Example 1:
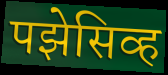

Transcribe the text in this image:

पझेसिव्ह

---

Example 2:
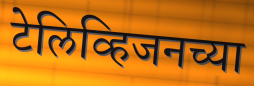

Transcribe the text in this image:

टेलिव्हिजनच्या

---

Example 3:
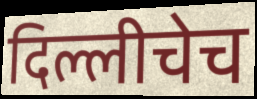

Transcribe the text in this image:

दिल्लीचेच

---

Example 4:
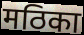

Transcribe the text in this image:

मठिका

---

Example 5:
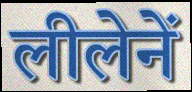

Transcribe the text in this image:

लीलेनें